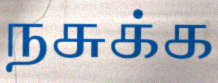
நசுக்க